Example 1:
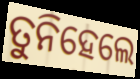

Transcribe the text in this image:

ତୁନିହେଲେ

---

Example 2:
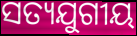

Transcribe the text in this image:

ସତ୍ୟଯୁଗୀୟ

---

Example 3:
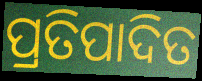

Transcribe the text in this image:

ପ୍ରତିପାଦିତ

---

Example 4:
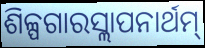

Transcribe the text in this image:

ଶିଳ୍ପଗାରସ୍ଲାପନାର୍ଥମ୍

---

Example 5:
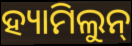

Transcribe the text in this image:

ହ୍ୟାମିଲୁନ୍